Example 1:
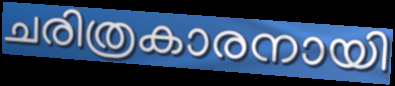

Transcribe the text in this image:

ചരിത്രകാരനായി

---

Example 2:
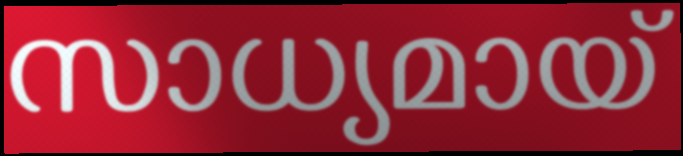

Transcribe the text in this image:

സാധ്യമായ്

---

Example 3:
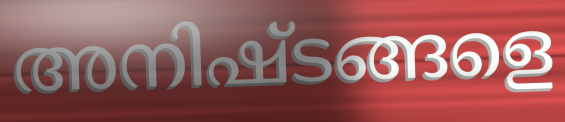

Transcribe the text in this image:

അനിഷ്ടങ്ങളെ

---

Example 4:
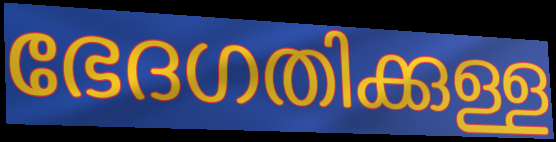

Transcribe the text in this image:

ഭേദഗതിക്കുള്ള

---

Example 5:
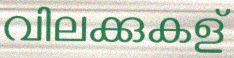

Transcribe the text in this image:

വിലക്കുകള്